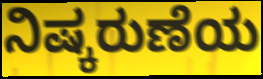
ನಿಷ್ಕರುಣೆಯ